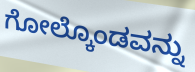
ಗೋಲ್ಕೊಂಡವನ್ನು